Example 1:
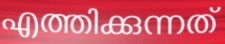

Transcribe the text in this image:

എത്തിക്കുന്നത്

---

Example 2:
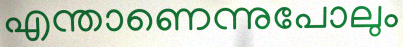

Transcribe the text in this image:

എന്താണെന്നുപോലും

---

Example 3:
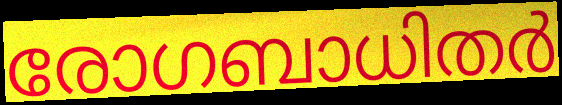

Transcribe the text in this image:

രോഗബാധിതർ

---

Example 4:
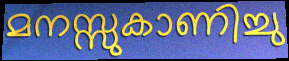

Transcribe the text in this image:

മനസ്സുകാണിച്ചു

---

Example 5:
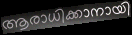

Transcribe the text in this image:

ആരാധിക്കാനായി